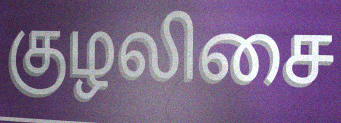
குழலிசை